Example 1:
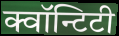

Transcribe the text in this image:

क्वॉन्टिटी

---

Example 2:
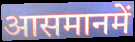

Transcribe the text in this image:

आसमानमें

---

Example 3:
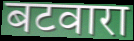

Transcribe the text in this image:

बटवारा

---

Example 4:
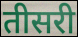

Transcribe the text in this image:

तीसरी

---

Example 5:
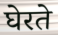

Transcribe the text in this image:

घेरते